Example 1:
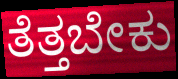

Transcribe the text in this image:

ತೆತ್ತಬೇಕು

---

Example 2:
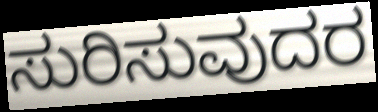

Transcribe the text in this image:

ಸುರಿಸುವುದರ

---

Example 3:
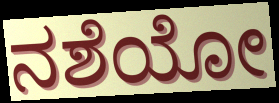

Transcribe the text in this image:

ನಶೆಯೋ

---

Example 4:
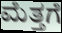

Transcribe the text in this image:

ಮೆತ್ತಗೆ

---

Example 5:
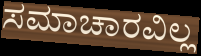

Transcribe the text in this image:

ಸಮಾಚಾರವಿಲ್ಲ